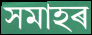
সমাহৰ